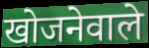
खोजनेवाले